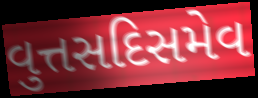
વુત્તસદિસમેવ